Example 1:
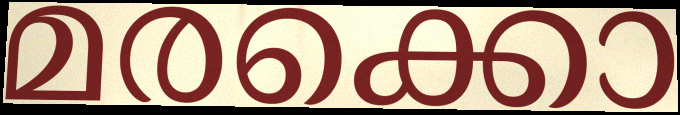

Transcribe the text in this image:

മരക്കൊ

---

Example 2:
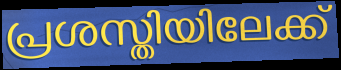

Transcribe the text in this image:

പ്രശസ്തിയിലേക്ക്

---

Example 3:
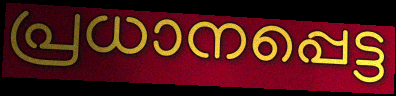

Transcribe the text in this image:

പ്രധാനപ്പെട്ട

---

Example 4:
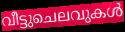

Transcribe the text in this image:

വീട്ടുചെലവുകൾ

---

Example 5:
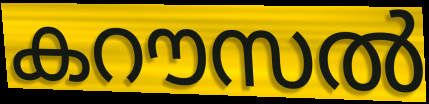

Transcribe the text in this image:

കറൗസൽ